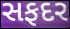
સફદર